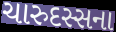
ચારુદસ્સના